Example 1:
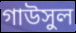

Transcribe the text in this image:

গাউসুল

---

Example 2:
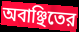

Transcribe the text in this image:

অবাঞ্ছিতের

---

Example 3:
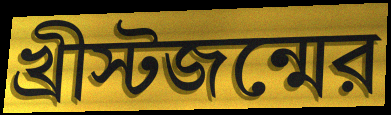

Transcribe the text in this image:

খ্রীস্টজন্মের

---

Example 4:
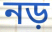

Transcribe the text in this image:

নড়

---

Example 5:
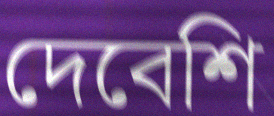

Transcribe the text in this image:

দেবেশি